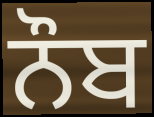
ਨੌਬ